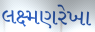
લક્ષ્મણરેખા